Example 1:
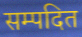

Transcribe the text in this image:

सम्पदित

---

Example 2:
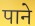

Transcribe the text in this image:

पाने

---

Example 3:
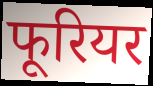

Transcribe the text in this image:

फूरियर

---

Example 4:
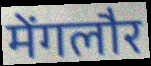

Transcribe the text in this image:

मेंगलौर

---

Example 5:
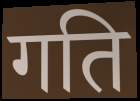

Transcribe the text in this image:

गति